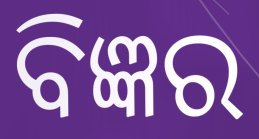
ବିଜ୍ଞର